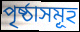
পৃষ্ঠাসমূহ